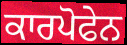
ਕਾਰਪੋਫੇਨ